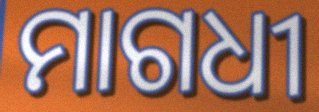
ମାଗଧୀ